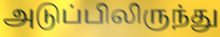
அடுப்பிலிருந்து